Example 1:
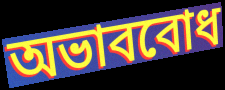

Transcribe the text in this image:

অভাববোধ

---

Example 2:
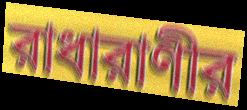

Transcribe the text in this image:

রাধারাণীর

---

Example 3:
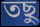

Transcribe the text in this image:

তছু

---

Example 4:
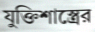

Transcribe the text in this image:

যুক্তিশাস্ত্রের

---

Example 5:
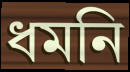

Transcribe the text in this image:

ধমনি